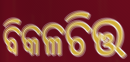
ବିକଳଚିତ୍ତ